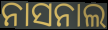
ନାସନାଲ